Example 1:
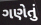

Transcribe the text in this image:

ગણેતું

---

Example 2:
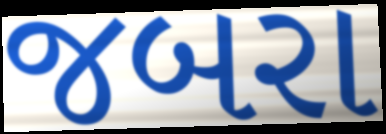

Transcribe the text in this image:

જબરા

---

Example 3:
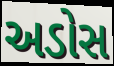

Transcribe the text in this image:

અડોસ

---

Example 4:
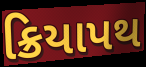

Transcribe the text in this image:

ક્રિયાપથ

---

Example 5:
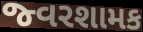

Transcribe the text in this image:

જ્વરશામક